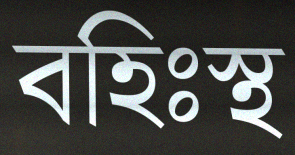
বহিঃস্থ